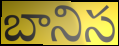
బానిస